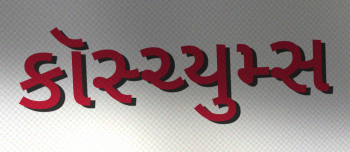
કૉસ્ચ્યુમ્સ